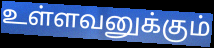
உள்ளவனுக்கும்